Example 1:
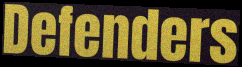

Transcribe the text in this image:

Defenders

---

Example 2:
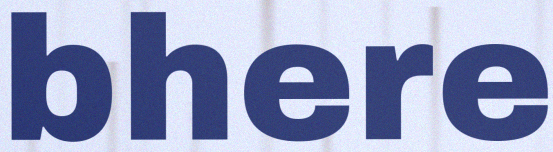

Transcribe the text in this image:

bhere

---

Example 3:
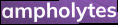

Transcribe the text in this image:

ampholytes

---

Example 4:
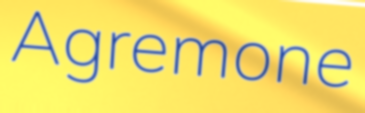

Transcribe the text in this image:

Agremone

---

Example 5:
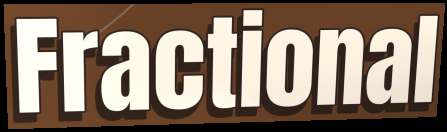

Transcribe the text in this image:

Fractional